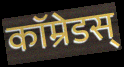
कॉम्रेडस्